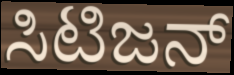
ಸಿಟಿಜನ್